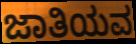
ಜಾತಿಯವ